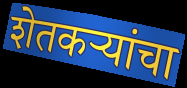
शेतकऱ्यांचा